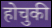
होचुकी